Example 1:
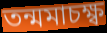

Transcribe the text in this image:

তন্মমাচক্ষ্ব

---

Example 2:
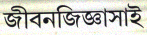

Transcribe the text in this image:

জীবনজিজ্ঞাসাই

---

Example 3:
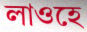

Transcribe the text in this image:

লাওহে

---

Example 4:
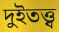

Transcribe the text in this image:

দুইতত্ত্ব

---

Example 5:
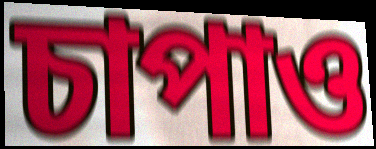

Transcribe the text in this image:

চাপাও